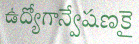
ఉద్యోగాన్వేషణకై